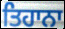
ਤਿਹਾਨਾ